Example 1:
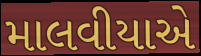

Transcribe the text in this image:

માલવીયાએ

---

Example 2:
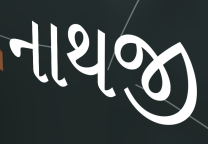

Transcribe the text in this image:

નાથજી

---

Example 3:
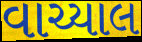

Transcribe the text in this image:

વાચ્યાલ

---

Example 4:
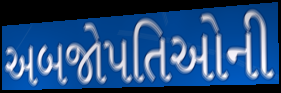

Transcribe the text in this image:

અબજોપતિઓની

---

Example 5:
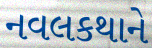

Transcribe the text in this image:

નવલકથાને